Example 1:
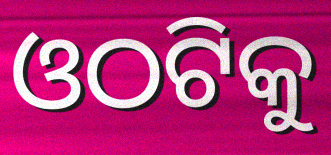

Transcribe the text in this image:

ଓଠଟିକୁ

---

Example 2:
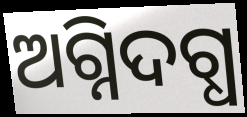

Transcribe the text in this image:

ଅଗ୍ନିଦଗ୍ଧ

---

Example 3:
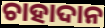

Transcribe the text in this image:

ଚାହାଦାନ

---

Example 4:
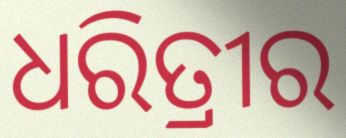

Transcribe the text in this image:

ଧରିତ୍ରୀର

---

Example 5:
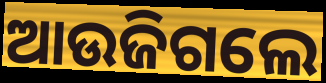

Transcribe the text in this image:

ଆଉଜିଗଲେ